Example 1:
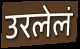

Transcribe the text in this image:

उरलेलं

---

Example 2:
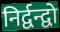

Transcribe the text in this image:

निर्द्वन्द्वो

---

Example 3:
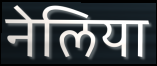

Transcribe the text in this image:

नेलिया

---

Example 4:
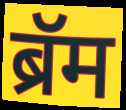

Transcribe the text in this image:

ब्रॅम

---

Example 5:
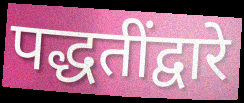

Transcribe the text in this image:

पद्धतींद्वारे